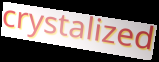
crystalized